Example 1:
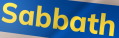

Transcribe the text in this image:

Sabbath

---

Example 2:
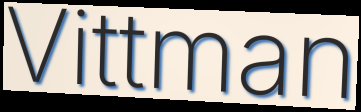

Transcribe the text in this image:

Vittman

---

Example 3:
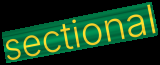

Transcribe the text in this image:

sectional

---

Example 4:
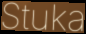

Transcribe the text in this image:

Stuka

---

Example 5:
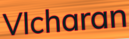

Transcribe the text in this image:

VIcharan